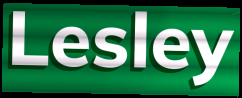
Lesley